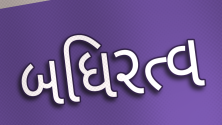
બધિરત્વ